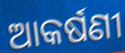
ଆକର୍ଷଣୀ